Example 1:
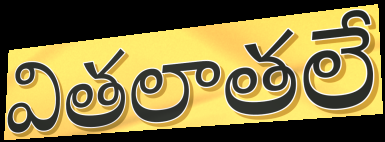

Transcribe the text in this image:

వితలాతలే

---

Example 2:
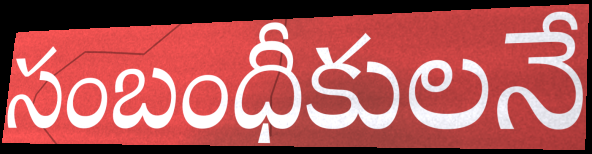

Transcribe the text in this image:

సంబంధీకులనే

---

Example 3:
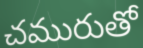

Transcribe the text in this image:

చమురుతో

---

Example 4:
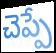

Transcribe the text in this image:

చెప్పే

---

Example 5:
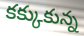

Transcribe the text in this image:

కక్కుకున్న